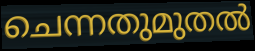
ചെന്നതുമുതൽ